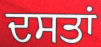
ਦਸਤਾਂ